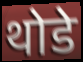
थोडे